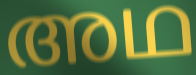
അഥ